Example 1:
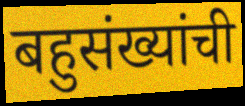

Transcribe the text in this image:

बहुसंख्यांची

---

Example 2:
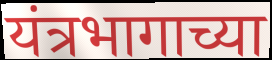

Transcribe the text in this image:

यंत्रभागाच्या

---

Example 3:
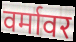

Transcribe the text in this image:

वर्मावर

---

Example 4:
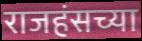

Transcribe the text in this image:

राजहंसच्या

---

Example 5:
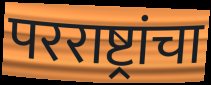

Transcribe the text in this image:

परराष्ट्रांचा